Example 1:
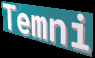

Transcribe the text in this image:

Temni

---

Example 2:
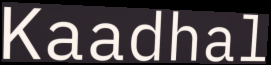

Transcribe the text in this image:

Kaadhal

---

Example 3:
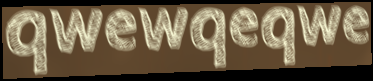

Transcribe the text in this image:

qwewqeqwe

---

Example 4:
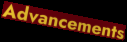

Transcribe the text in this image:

Advancements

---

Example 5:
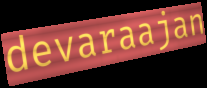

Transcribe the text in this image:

devaraajan